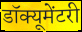
डॉक्यूमेंटरी